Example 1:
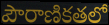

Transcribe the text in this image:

పౌరాణికతలో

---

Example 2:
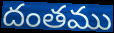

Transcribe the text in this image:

దంతము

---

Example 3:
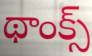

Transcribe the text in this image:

థాంక్స్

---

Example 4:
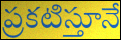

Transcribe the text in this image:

ప్రకటిస్తూనే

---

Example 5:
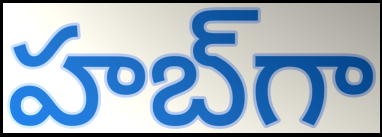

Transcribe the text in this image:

హబ్‌గా